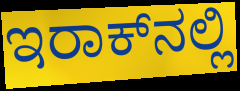
ಇರಾಕ್‌ನಲ್ಲಿ